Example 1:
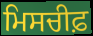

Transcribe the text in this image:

ਮਿਸਚੀਫ਼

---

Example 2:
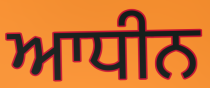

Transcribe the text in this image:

ਆਧੀਨ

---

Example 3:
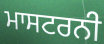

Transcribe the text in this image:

ਮਾਸਟਰਨੀ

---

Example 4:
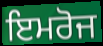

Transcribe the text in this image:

ਇਮਰੋਜ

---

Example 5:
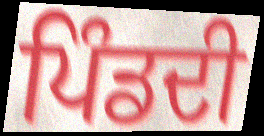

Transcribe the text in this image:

ਪਿੰਡਦੀ